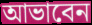
আভাবেন